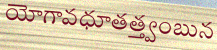
యోగావధూతత్త్వంబున